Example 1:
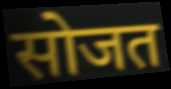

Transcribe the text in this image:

सोजत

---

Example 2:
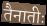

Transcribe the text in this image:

तैनातीः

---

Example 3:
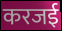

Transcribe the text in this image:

करजई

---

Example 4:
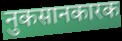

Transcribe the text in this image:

नुकसानकारक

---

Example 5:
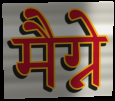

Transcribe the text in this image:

मैग्ने